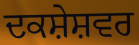
ਦਕਸ਼ੇਸ਼ਵਰ